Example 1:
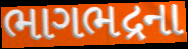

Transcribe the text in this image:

ભાગભદ્રના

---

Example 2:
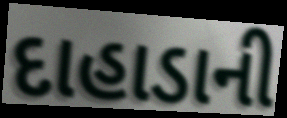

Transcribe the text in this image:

દાહાડાની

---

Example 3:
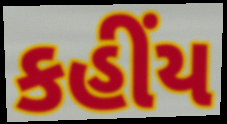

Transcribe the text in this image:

કહીંય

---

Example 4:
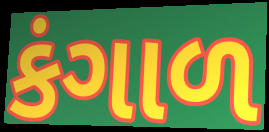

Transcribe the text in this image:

કંગાળ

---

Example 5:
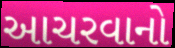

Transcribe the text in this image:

આચરવાનો